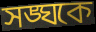
সঙ্ঘকে